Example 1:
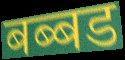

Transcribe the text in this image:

बब्बड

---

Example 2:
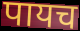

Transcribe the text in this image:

पायच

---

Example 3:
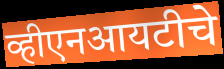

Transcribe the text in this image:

व्हीएनआयटीचे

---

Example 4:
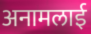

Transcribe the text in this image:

अनामलाई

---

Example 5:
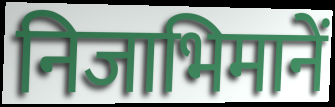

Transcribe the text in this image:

निजाभिमानें